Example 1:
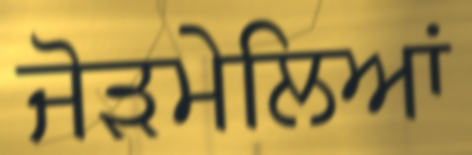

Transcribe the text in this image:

ਜੋੜਮੇਲਿਆਂ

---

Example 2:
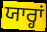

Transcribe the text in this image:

ਯਾਰ੍ਹਾਂ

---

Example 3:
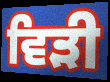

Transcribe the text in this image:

ਵਿੜੀ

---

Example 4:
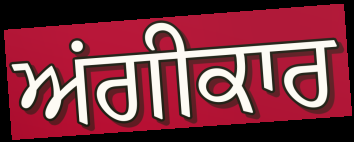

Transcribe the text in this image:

ਅਂਗੀਕਾਰ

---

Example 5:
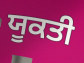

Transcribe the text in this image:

ਯੂਕਤੀ